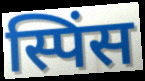
स्पिंस